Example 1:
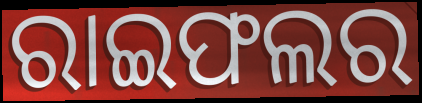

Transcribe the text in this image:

ରାଇଫଲର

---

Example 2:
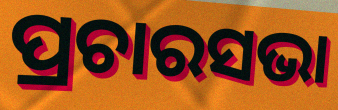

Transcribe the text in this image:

ପ୍ରଚାରସଭା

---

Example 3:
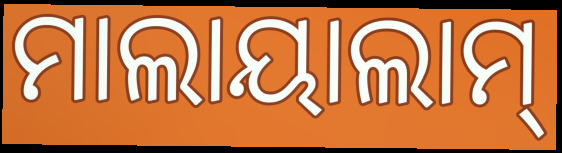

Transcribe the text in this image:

ମାଲାୟାଲାମ୍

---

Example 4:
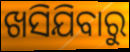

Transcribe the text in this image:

ଖସିଯିବାରୁ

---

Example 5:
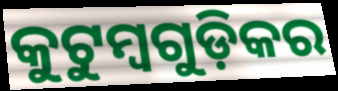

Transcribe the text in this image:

କୁଟୁମ୍ବଗୁଡ଼ିକର